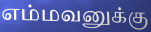
எம்மவனுக்கு